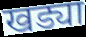
खड्या